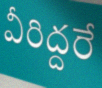
వీరిద్దరే